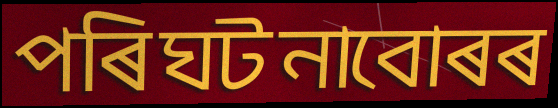
পৰিঘটনাবোৰৰ